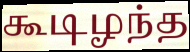
கூடிழந்த